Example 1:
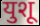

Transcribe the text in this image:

युशू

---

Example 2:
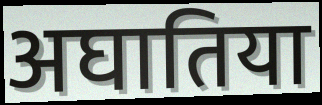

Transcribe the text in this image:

अघातिया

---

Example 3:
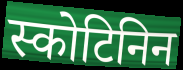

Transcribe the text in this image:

स्कोटिनिन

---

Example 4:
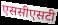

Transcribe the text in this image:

एससीएसटी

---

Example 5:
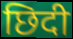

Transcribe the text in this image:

छिदी